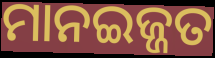
ମାନଇଜ୍ଜତ